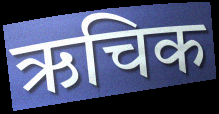
ऋचिक